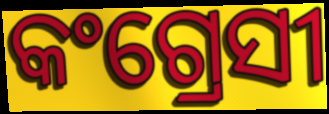
କଂଗ୍ରେସୀ